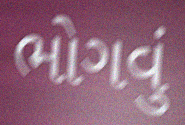
ભોગવું